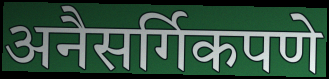
अनैसर्गिकपणे